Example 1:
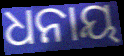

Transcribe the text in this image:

ଧନାୟ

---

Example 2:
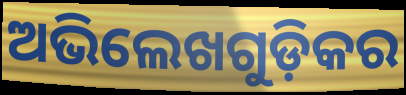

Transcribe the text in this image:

ଅଭିଲେଖଗୁଡ଼ିକର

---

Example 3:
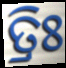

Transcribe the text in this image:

ତ୍ରିଃ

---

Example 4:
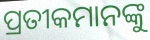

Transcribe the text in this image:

ପ୍ରତୀକମାନଙ୍କୁ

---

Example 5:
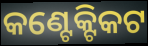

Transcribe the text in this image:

କଣ୍ଟେକ୍ଟିକଟ